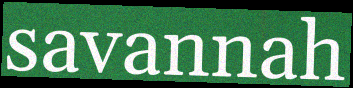
savannah